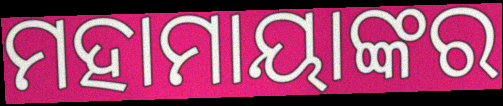
ମହାମାୟାଙ୍କର